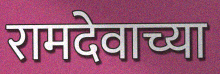
रामदेवाच्या